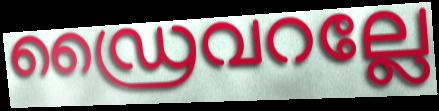
ഡ്രൈവറല്ലേ